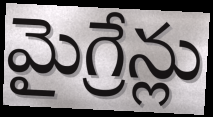
మైగ్రేన్లు